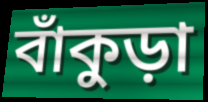
বাঁকুড়া